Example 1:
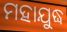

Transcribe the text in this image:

ମହାଯୁଦ୍ଧ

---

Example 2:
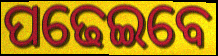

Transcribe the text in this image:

ପଢେଇବେ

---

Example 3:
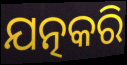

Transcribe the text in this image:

ଯତ୍ନକରି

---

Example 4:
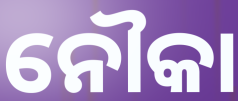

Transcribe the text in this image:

ନୌକା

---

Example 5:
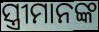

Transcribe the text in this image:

ସ୍ତ୍ରୀମାନଙ୍କ